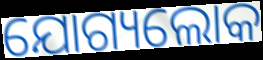
ଯୋଗ୍ୟଲୋକ